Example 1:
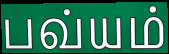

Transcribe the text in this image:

பவ்யம்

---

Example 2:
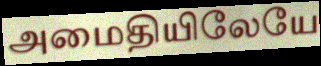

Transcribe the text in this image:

அமைதியிலேயே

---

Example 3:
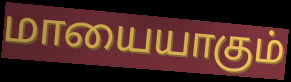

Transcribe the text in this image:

மாயையாகும்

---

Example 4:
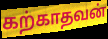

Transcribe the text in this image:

கற்காதவன்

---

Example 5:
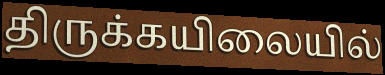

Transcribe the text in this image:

திருக்கயிலையில்